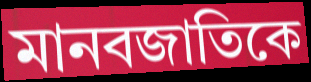
মানবজাতিকে